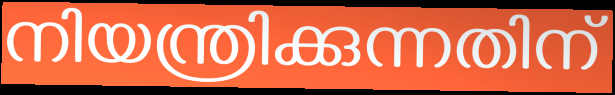
നിയന്ത്രിക്കുന്നതിന്